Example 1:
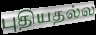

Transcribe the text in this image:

புதியதல்ல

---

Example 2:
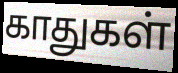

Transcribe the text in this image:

காதுகள்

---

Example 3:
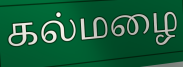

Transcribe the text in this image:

கல்மழை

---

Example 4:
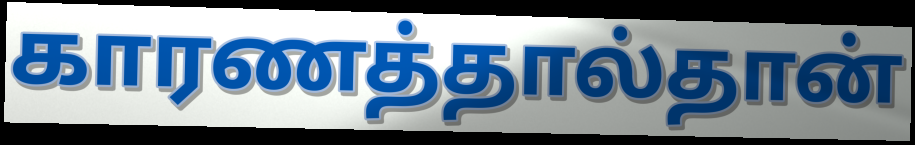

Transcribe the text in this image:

காரணத்தால்தான்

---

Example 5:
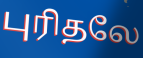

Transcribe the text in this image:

புரிதலே